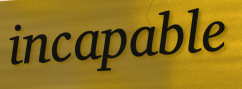
incapable